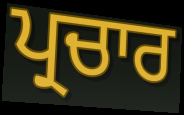
ਪ੍ਰਚਾਰ